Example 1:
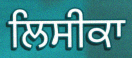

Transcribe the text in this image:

ਲਿਸੀਕਾ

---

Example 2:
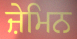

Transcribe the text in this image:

ਜ਼ੇਮਿਨ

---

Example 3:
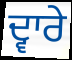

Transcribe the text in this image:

ਦ੍ਵਾਰੇ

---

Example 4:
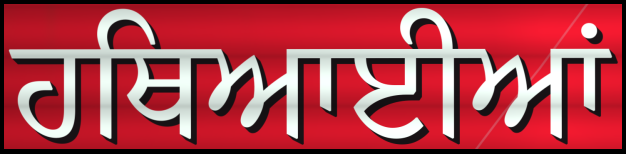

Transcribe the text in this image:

ਹਥਿਆਈਆਂ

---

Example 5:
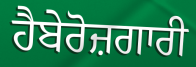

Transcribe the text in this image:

ਹੈਬੇਰੋਜ਼ਗਾਰੀ